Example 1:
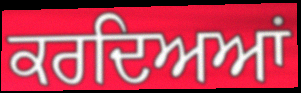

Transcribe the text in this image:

ਕਰਦਿਅਆਂ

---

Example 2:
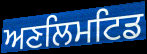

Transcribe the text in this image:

ਅਣਲਿਮਟਿਡ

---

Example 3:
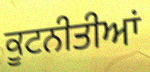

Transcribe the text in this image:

ਕੂਟਨੀਤੀਆਂ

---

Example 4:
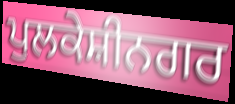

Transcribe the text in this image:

ਪੁਲਕੇਸ਼ੀਨਗਰ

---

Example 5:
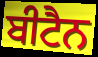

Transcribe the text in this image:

ਬੀਟੈਨ